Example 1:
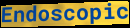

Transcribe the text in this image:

Endoscopic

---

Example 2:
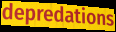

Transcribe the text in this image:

depredations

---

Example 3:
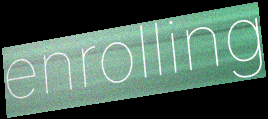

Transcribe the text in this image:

enrolling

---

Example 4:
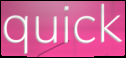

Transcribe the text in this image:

quick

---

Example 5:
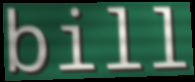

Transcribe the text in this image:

bill